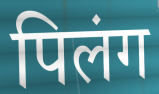
पिलंग